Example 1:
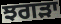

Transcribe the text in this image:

ਝਗੜਾ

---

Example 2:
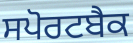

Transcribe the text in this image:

ਸਪੋਰਟਬੈਕ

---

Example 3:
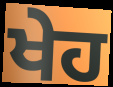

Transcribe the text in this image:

ਖੇਹ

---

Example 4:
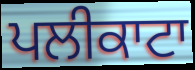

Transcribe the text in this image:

ਪਲੀਕਾਟਾ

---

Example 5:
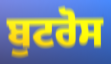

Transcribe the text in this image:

ਬੁਟਰੋਸ